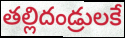
తల్లిదండ్రులకే